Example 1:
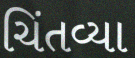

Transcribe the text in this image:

ચિંતવ્યા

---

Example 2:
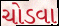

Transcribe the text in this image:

ચોડવા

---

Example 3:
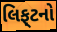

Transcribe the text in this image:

લિફ્‌ટનો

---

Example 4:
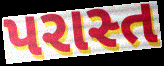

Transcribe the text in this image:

પરાસ્ત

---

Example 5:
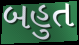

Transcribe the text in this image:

બહુત